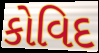
કોવિદ